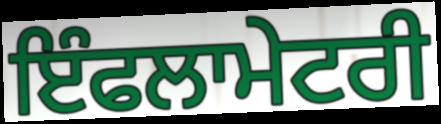
ਇੰਫਲਾਮੇਟਰੀ